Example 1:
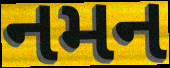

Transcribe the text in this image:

નમન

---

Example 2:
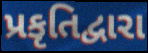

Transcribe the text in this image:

પ્રકૃતિદ્વારા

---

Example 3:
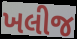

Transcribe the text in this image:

ખલીજ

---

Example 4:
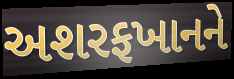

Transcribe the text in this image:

અશરફખાનને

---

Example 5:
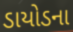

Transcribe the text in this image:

ડાયોડના